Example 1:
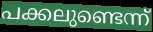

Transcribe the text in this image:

പക്കലുണ്ടെന്ന്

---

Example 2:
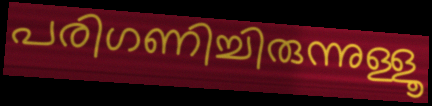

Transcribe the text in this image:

പരിഗണിച്ചിരുന്നുള്ളൂ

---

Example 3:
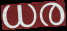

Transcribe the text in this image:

ധര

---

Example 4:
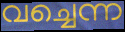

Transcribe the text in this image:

വച്ചെന്ന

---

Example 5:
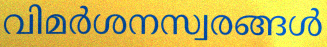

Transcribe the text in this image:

വിമർശനസ്വരങ്ങൾ